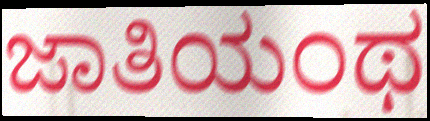
ಜಾತಿಯಂಥ